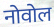
नोवोल